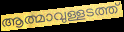
ആത്മാവുള്ളടത്ത്